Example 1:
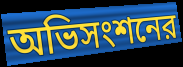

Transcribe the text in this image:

অভিসংশনের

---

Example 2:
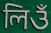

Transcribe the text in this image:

লিওঁ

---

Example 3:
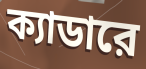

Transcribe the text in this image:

ক্যাডারে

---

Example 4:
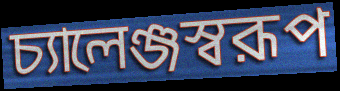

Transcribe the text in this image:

চ্যালেঞ্জস্বরূপ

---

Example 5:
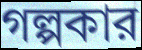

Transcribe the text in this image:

গল্পকার